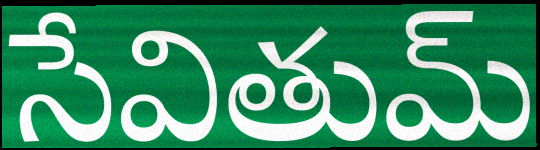
సేవితుమ్